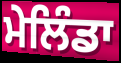
ਮੇਲਿੰਡਾ